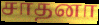
சாதனா